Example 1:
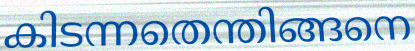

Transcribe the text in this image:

കിടന്നതെന്തിങ്ങനെ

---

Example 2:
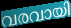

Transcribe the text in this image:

വരവായി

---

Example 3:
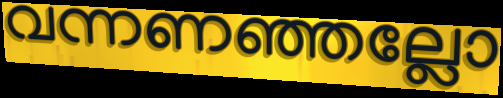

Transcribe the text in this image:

വന്നണഞ്ഞല്ലോ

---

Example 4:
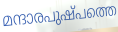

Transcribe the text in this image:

മന്ദാരപുഷ്പത്തെ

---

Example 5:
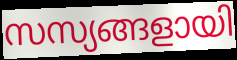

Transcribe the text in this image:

സസ്യങ്ങളായി